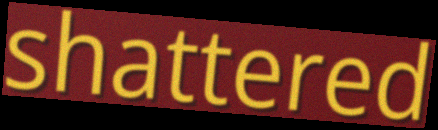
shattered